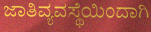
ಜಾತಿವ್ಯವಸ್ಥೆಯಿಂದಾಗಿ